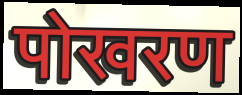
पोखरण